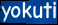
yokuti